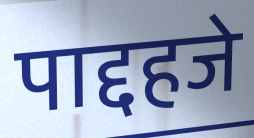
पाद्दहजे